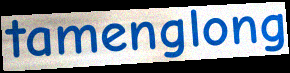
tamenglong